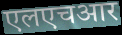
एलएचआर